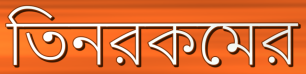
তিনরকমের